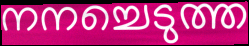
നനച്ചെടുത്ത